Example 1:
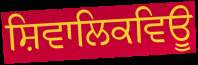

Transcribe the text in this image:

ਸ਼ਿਵਾਲਿਕਵਿਊ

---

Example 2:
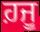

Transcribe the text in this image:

ਹ਼ਜੂ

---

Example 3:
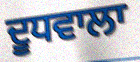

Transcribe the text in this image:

ਦੂਧਵਾਲਾ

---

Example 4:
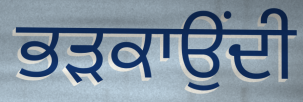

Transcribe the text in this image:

ਭੜਕਾਉਂਦੀ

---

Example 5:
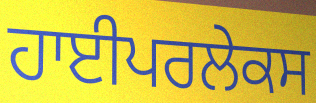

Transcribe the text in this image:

ਹਾਈਪਰਲੇਕਸ